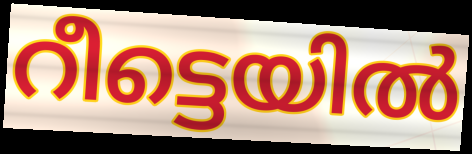
റീട്ടെയിൽ